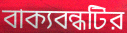
বাক্যবন্ধটির